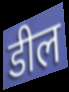
डील